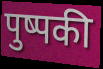
पुष्पकी